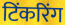
टिंकरिंग